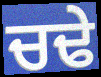
ਚਢੇ